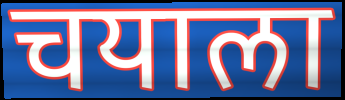
चयाला